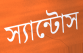
স্যান্টোস